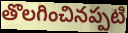
తొలగించినప్పటి